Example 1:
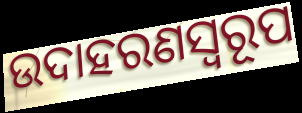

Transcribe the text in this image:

ଉଦାହରଣସ୍ୱରୂପ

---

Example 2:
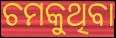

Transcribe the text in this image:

ଚମକୁଥିବା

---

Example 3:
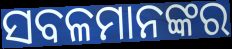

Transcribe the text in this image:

ସବଳମାନଙ୍କର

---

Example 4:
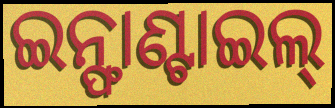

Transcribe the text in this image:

ଇନ୍ଫାଣ୍ଟାଇଲ୍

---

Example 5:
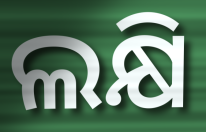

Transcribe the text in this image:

ଲକ୍ଷି